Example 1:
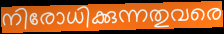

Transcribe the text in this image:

നിരോധിക്കുന്നതുവരെ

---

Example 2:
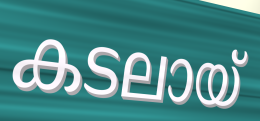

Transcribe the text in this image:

കടലായ്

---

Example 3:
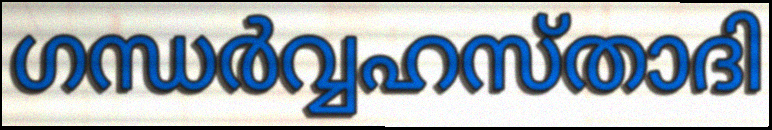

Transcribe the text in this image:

ഗന്ധർവ്വഹസ്താദി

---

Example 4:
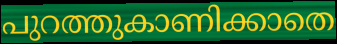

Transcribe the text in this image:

പുറത്തുകാണിക്കാതെ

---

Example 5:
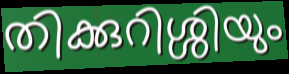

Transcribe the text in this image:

തിക്കുറിശ്ശിയും